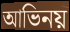
আভিনয়